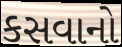
કસવાનો